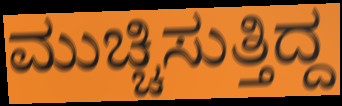
ಮುಚ್ಚಿಸುತ್ತಿದ್ದ